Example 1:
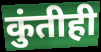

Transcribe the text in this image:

कुंतीही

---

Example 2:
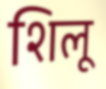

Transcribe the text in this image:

शिलू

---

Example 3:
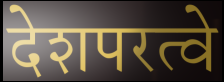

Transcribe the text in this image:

देशपरत्वे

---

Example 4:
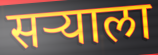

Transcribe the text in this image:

सऱ्याला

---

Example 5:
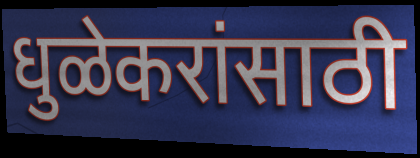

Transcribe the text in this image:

धुळेकरांसाठी